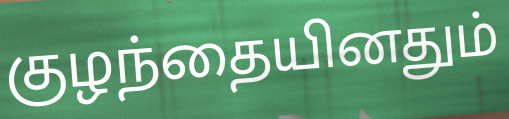
குழந்தையினதும்